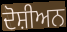
ਦੋਸ਼ੀਅਨ